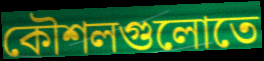
কৌশলগুলোতে